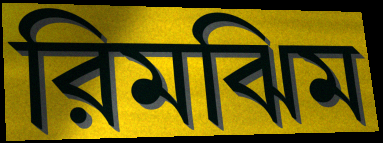
রিমঝিম